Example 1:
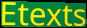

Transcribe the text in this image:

Etexts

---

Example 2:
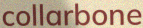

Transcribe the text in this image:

collarbone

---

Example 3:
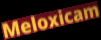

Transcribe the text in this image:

Meloxicam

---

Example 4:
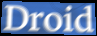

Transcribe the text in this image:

Droid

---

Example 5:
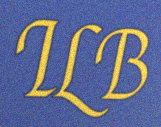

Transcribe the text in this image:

ILB